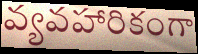
వ్యవహారికంగా